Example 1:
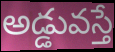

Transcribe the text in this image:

అడ్డువస్తే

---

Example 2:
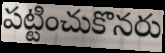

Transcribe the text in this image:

పట్టించుకొనరు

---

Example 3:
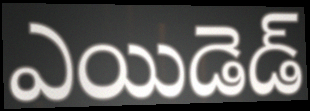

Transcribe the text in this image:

ఎయిడెడ్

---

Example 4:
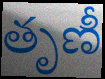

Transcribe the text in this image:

తృణీ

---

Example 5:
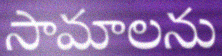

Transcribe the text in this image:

సామాలను